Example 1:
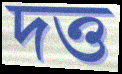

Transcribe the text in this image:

দত্ত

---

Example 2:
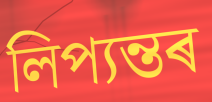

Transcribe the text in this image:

লিপ্যন্তৰ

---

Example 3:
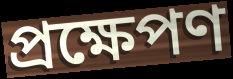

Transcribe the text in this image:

প্ৰক্ষেপণ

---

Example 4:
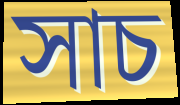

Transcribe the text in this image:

সাচ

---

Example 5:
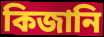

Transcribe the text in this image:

কিজানি